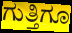
ಗುತ್ತಿಗೂ